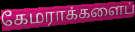
கேமராக்களைப்